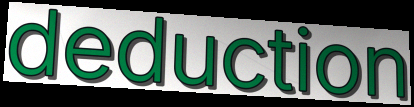
deduction